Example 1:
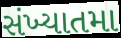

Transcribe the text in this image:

સંખ્યાતમા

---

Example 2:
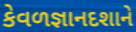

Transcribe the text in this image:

કેવળજ્ઞાનદશાને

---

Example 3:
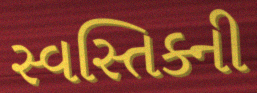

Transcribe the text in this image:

સ્વસ્તિક્ની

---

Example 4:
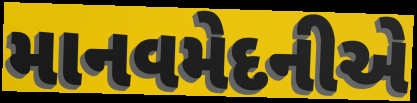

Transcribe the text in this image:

માનવમેદનીએ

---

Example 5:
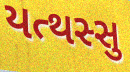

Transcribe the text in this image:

યત્થસ્સુ